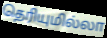
தெரியுமில்லா